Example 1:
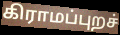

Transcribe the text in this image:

கிராமப்புறச்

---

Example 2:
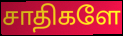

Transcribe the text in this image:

சாதிகளே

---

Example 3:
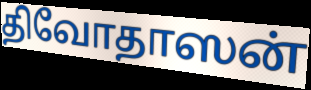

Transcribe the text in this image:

திவோதாஸன்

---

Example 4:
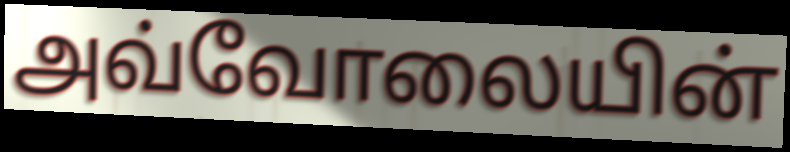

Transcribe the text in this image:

அவ்வோலையின்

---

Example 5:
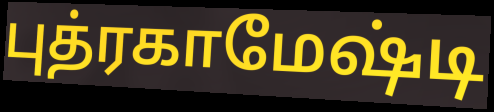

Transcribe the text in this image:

புத்ரகாமேஷ்டி